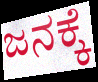
ಜನಕ್ಕೆ